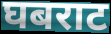
घबराट